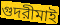
গুদরীমাই